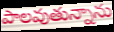
పాలవుతున్నాను